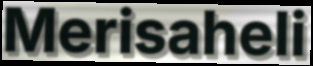
Merisaheli